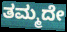
ತಮ್ಮದೇ